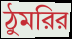
ঠুমরির